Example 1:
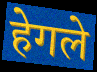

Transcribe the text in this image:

हेगले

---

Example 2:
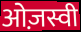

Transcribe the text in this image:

ओज़स्वी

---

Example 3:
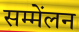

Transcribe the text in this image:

सम्मेंलन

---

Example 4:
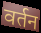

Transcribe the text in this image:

वर्तन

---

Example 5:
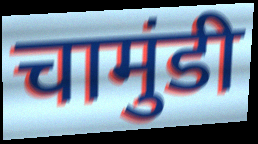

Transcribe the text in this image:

चामुंडी